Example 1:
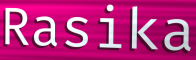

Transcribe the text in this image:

Rasika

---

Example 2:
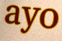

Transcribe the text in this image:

ayo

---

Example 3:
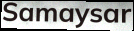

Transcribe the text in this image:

Samaysar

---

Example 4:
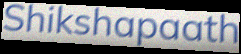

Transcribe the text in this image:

Shikshapaath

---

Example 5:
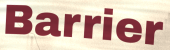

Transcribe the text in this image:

Barrier